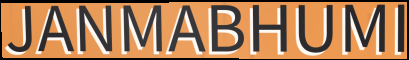
JANMABHUMI